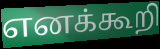
எனக்கூறி